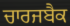
ਚਾਰਜਬੈਕ